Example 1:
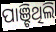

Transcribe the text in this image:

ପାଞ୍ଚିଥିଲି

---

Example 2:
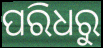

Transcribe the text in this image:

ପରିଧରୁ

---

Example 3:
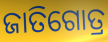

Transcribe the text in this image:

ଜାତିଗୋତ୍ର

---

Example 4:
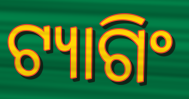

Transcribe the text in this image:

ଟ୍ୟାଗିଂ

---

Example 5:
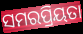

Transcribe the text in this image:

ସମରପ୍ରିୟତା